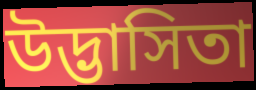
উদ্ভাসিতা